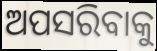
ଅପସରିବାକୁ